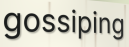
gossiping